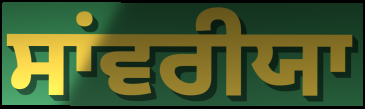
ਸਾਂਵਰੀਯਾ